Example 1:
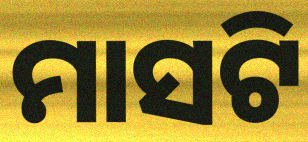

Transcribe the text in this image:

ମାସଟି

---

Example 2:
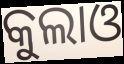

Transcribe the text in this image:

କୁଲାଓ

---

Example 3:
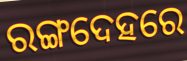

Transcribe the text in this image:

ରଙ୍ଗଦେହରେ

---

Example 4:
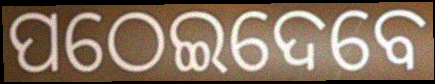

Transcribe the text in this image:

ପଠେଇଦେବେ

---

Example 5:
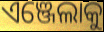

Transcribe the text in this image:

ଏଞ୍ଜେଲାକୁ